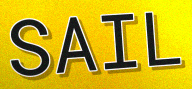
SAIL